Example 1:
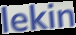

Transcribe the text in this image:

lekin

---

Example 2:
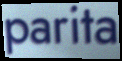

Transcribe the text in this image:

parita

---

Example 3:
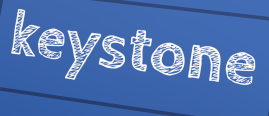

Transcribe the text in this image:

keystone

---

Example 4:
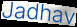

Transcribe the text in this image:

Jadhav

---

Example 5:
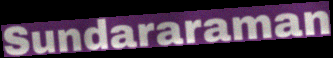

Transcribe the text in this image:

Sundararaman